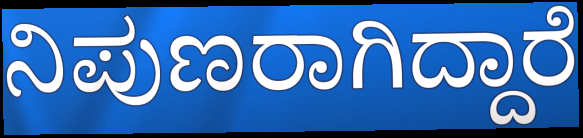
ನಿಪುಣರಾಗಿದ್ದಾರೆ